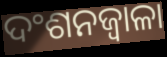
ଦଂଶନଜ୍ୱାଳା